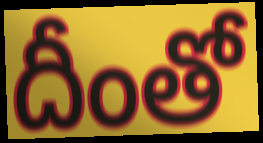
దీంతో